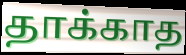
தாக்காத